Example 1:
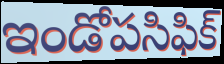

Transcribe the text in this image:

ఇండోపసిఫిక్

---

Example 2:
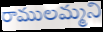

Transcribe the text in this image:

రాములమ్మని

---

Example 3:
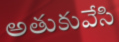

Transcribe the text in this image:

అతుకువేసి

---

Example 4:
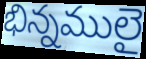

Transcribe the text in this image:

భిన్నములై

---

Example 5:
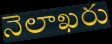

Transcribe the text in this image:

నెలాఖరు